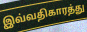
இவ்வதிகாரத்து